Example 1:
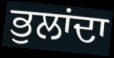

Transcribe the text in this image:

ਭੁਲਾਂਦਾ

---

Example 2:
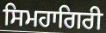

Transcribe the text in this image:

ਸਿਮਹਾਗਿਰੀ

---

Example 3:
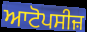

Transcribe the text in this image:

ਆਟੋਪਸੀਜ਼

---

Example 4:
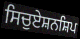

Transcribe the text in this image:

ਸਿਚੁਏਸ਼ਨਸ਼ਿਪ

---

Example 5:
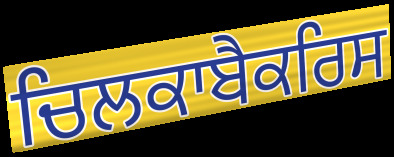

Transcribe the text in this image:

ਚਿਲਕਾਬੈਕਰਿਸ